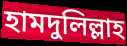
হামদুলিল্লাহ